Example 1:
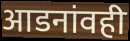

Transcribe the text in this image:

आडनांवही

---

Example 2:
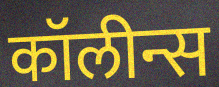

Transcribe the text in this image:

कॉलीन्स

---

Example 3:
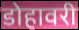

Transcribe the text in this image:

डोहावरी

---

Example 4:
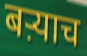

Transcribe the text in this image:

बऱ्‍याच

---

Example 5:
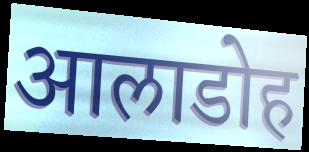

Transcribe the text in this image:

आलाडोह